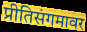
प्रीतिसंगमावर